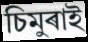
চিমুৰাই